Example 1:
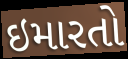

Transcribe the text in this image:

ઇમારતો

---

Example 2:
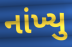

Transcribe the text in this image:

નાંખ્યુ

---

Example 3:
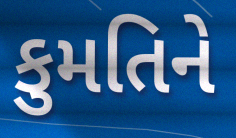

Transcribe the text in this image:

કુમતિને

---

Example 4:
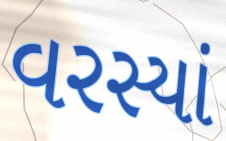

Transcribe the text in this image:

વરસ્યાં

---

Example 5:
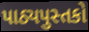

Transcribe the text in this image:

પાઠ્યપુસ્તકો